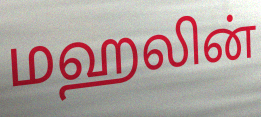
மஹலின்